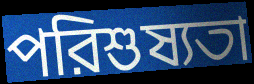
পরিশুষ্যতা